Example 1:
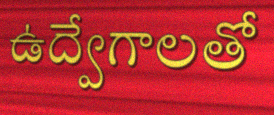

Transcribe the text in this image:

ఉద్వేగాలతో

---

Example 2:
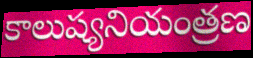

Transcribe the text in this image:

కాలుష్యనియంత్రణ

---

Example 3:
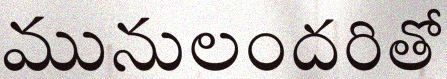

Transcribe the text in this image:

మునులందరితో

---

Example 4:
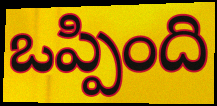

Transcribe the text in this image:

ఒప్పింది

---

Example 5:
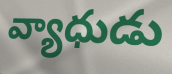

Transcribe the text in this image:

వ్యాధుడు